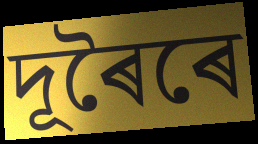
দূৰৈৰে